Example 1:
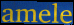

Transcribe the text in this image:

amele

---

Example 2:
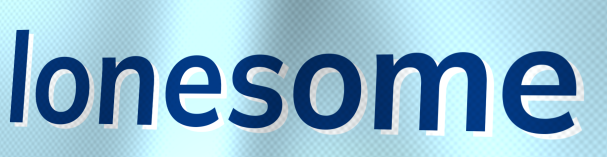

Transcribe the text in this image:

lonesome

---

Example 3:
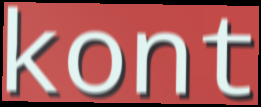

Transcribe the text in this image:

kont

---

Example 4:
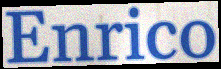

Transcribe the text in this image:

Enrico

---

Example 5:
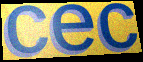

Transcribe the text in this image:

cec